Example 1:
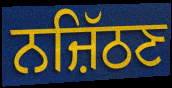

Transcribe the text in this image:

ਨਜ਼ਿੱਠਣ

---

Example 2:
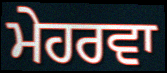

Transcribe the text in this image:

ਮੇਹਰਵਾ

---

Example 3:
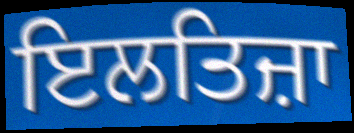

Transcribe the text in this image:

ਇਲਤਿਜ਼ਾ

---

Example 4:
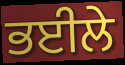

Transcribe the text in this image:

ਭਈਲੇ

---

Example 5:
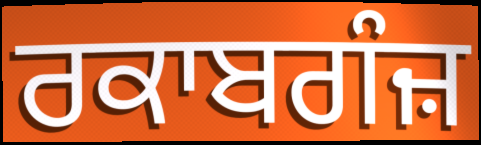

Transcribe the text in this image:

ਰਕਾਬਗੰਜ਼